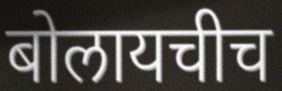
बोलायचीच